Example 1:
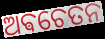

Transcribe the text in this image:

ଅଵଚେତନ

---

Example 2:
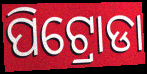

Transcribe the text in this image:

ପିଟ୍ରୋଡା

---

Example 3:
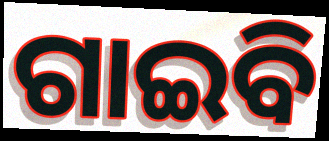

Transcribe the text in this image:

ଗାଇବି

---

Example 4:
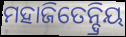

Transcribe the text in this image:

ମହାଜିତେନ୍ଦ୍ରିୟ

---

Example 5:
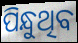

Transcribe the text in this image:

ପିନ୍ଧୁଥିବ